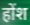
होंश